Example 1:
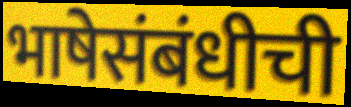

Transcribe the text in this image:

भाषेसंबंधीची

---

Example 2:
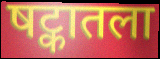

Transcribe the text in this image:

षट्कातला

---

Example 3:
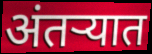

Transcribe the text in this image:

अंतऱ्यात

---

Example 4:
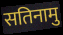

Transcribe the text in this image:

सतिनामु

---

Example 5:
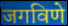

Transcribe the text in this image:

जगविणे